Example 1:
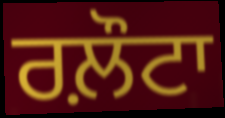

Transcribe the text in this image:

ਰਲ਼ੌਟਾ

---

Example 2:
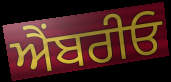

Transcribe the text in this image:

ਐੰਬਰੀਓ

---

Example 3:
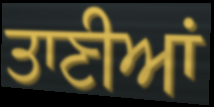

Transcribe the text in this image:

ਤਾਣੀਆਂ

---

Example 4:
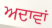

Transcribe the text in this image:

ਅਦਾਵਾਂ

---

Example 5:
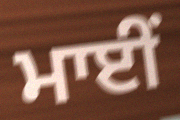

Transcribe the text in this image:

ਮਾਈਂ